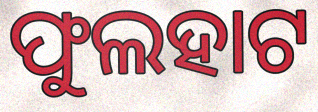
ଫୁଲହାଟ